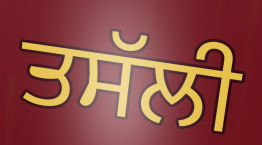
ਤਸੱਲੀ